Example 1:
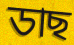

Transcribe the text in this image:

ডাছ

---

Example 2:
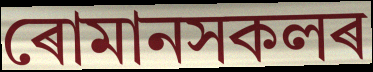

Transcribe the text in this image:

ৰোমানসকলৰ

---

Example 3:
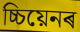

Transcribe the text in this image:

চ্চিয়েনৰ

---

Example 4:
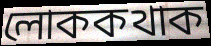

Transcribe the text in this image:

লোককথাক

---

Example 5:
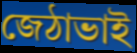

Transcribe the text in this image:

জেঠাভাই